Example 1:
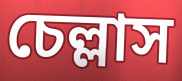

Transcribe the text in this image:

চেল্লাস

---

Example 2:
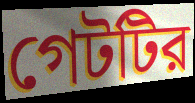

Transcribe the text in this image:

গেটটির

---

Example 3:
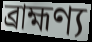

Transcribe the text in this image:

ব্রাহ্মণ্য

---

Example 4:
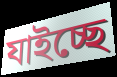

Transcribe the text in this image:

যাইচ্ছে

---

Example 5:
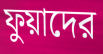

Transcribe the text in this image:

ফুয়াদের